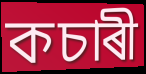
কচাৰী